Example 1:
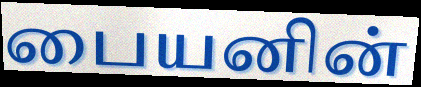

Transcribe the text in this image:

பையனின்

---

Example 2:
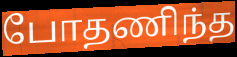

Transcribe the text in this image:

போதணிந்த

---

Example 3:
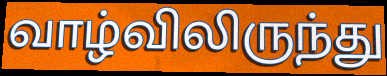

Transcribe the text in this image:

வாழ்விலிருந்து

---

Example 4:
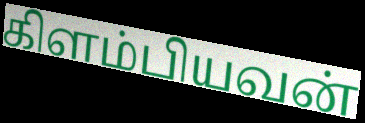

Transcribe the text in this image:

கிளம்பியவன்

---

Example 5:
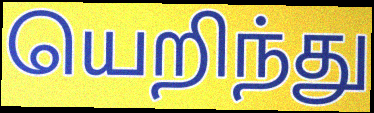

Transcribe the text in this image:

யெறிந்து